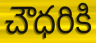
చౌధరికి